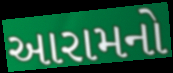
આરામનો